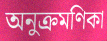
অনুক্রমণিকা